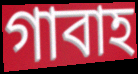
গাবাহ